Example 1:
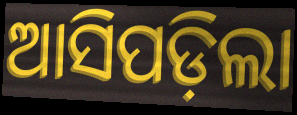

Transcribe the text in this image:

ଆସିପଡ଼ିଲା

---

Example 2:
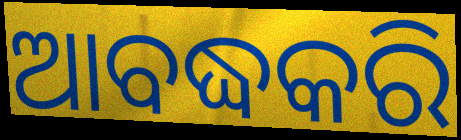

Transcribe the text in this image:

ଆବଦ୍ଧକରି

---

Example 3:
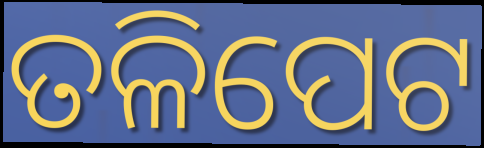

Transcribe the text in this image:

ତଳିପେଟ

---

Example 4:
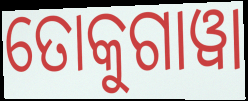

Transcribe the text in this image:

ତୋକୁଗାୱା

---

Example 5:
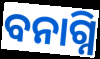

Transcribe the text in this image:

ବନାଗ୍ନି